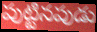
పుట్టినపుడు